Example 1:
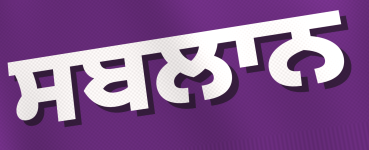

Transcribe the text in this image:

ਸਬਲਾਨ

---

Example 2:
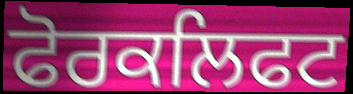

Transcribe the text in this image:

ਫੋਰਕਲਿਫਟ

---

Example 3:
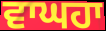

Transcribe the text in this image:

ਵਾਘਹਾ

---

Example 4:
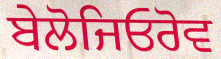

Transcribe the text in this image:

ਬੇਲੋਜਿਓਰੋਵ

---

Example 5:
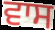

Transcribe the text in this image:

ਵਾਸ